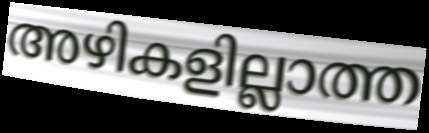
അഴികളില്ലാത്ത